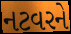
નટવરને